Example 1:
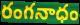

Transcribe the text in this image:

రంగనాధం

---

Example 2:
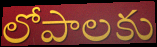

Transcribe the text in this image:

లోపాలకు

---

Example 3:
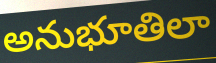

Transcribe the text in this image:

అనుభూతిలా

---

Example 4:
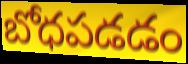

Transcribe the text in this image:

బోధపడడం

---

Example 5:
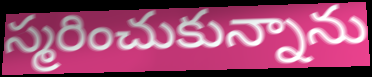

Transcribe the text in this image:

స్మరించుకున్నాను